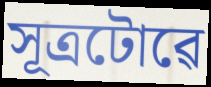
সূত্ৰটোৱে